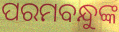
ପରମବନ୍ଧୁଙ୍କ